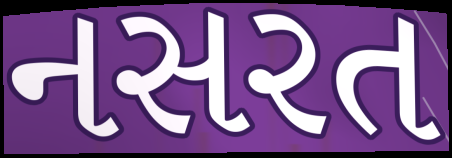
નસરત